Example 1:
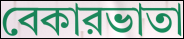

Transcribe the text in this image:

বেকারভাতা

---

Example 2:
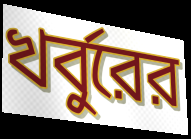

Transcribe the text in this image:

খর্বুরের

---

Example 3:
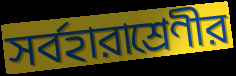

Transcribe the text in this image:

সর্বহারাশ্রেণীর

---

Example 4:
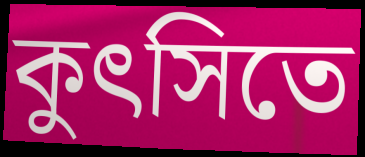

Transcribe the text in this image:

কুৎসিতে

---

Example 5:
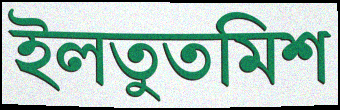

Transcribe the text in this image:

ইলতুতমিশ